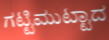
ಗಟ್ಟಿಮುಟ್ಟಾದ